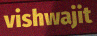
vishwajit